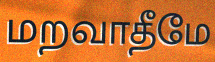
மறவாதீமே